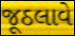
જૂઠલાવે